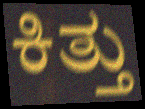
ಕಿತ್ತು